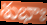
శుభాః